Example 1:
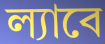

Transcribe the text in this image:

ল্যাবে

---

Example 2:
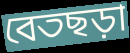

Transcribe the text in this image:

বেতছড়া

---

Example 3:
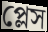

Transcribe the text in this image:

প্লেস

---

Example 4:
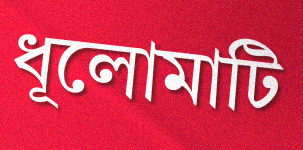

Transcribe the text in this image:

ধূলোমাটি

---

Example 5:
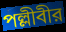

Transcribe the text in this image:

পল্লীবীর